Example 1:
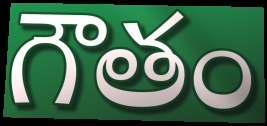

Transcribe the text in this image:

గౌతం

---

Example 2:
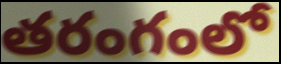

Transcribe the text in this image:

తరంగంలో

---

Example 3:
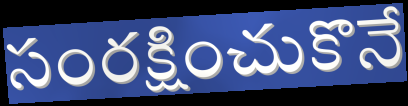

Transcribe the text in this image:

సంరక్షించుకొనే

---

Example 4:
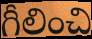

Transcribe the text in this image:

గీలించి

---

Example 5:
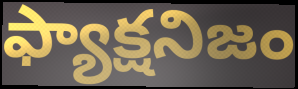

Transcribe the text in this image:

ఫ్యాక్షనిజం